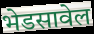
भेडसावेल